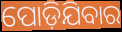
ପୋଡ଼ିଯିବାର